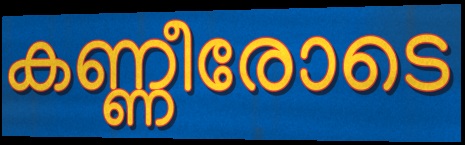
കണ്ണീരോടെ